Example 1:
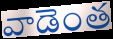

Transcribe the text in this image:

వాడెంత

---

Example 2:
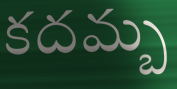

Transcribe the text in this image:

కదమ్బ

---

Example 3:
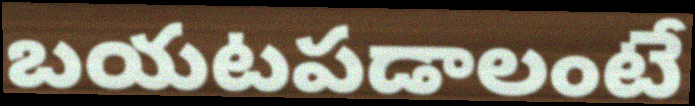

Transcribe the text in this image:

బయటపడాలంటే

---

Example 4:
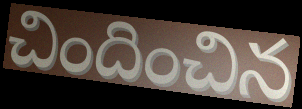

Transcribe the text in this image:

చిందించిన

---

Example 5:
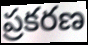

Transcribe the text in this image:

ప్రకరణ